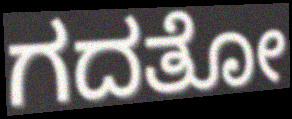
ಗದತೋ